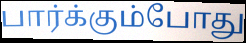
பார்க்கும்போது